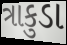
ત્રાકુડા